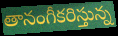
తానంగీకరిస్తున్న